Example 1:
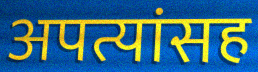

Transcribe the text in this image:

अपत्यांसह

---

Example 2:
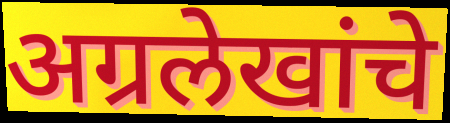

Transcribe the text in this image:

अग्रलेखांचे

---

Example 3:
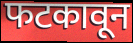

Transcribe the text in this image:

फटकावून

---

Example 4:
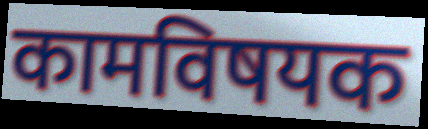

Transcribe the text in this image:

कामविषयक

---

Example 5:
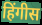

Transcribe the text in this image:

हिंगीस